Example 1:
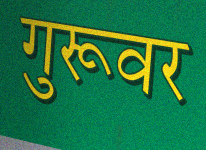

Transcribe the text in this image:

गुरूवर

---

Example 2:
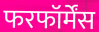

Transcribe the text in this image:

फरफॉर्मेंस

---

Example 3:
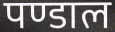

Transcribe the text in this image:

पण्डाल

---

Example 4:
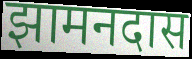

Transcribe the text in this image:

झामनदास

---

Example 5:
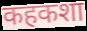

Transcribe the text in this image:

कहकशा